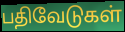
பதிவேடுகள்